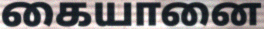
கையானை